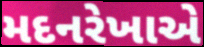
મદનરેખાએ